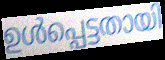
ഉൾപ്പെട്ടതായി